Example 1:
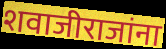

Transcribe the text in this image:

शवाजीराजांना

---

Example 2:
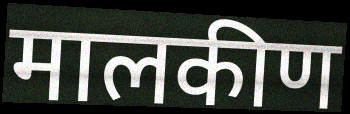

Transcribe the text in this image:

मालकीण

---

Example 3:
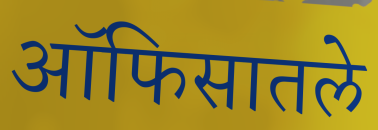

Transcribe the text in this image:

ऑफिसातले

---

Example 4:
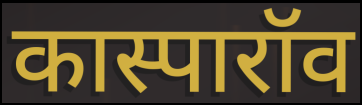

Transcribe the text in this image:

कास्पारॉव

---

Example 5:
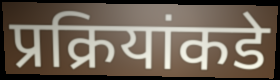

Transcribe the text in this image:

प्रक्रियांकडे